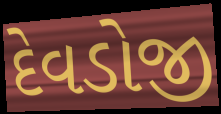
દેવડોજી